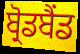
ਬ੍ਰੋਡਬੈਂਡ